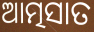
ଆତ୍ମସାତ